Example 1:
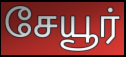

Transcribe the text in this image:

சேயூர்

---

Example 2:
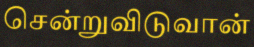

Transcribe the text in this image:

சென்றுவிடுவான்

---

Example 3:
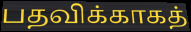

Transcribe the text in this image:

பதவிக்காகத்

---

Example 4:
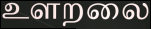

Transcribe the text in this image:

உளறலை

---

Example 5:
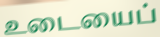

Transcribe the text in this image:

உடையைப்